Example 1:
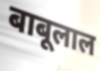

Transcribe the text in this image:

बाबूलाल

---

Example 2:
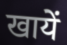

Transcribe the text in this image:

खायें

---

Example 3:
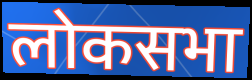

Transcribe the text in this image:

लोकसभा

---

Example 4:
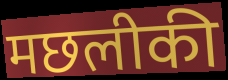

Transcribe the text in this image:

मछलीकी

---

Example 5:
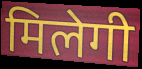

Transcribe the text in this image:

मिलेगी